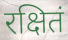
रक्षितं